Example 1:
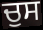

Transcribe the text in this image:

ਚੁਸ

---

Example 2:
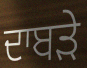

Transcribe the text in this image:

ਦਾਬੜੇ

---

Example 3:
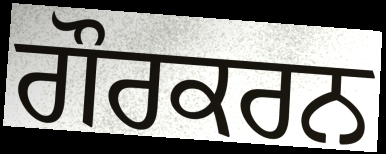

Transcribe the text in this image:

ਗੌਰਕਰਨ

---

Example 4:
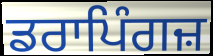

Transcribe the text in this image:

ਡਰਾਪਿੰਗਜ਼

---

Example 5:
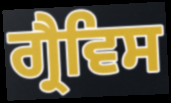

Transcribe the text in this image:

ਗ੍ਰੈਵਿਸ